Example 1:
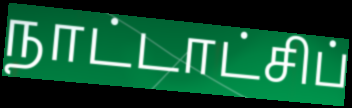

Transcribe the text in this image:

நாட்டாட்சிப்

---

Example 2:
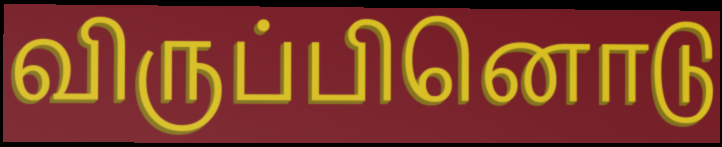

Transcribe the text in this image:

விருப்பினொடு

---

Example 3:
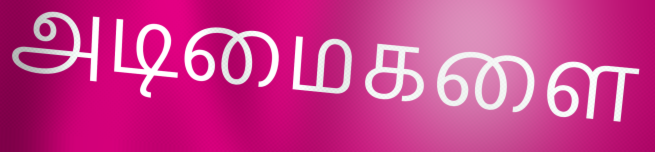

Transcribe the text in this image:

அடிமைகளை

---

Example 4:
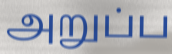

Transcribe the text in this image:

அறுப்ப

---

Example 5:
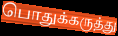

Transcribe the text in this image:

பொதுக்கருத்து